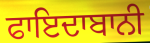
ਫਾਇਦਾਬਾਨੀ